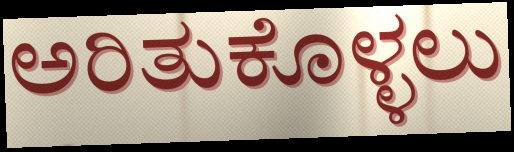
ಅರಿತುಕೊಳ್ಳಲು